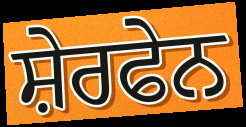
ਸ਼ੇਰਫੇਨ